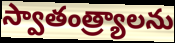
స్వాతంత్ర్యాలను